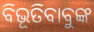
ବିଭୂତିବାବୁଙ୍କ